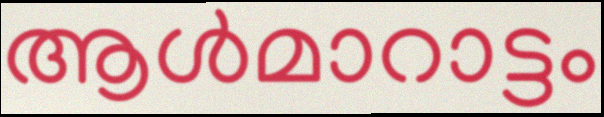
ആൾമാറാട്ടം